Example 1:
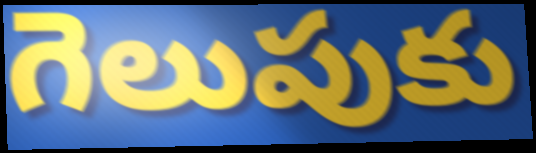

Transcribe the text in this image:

గెలుపుకు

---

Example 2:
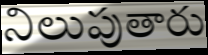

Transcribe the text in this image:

నిలుపుతారు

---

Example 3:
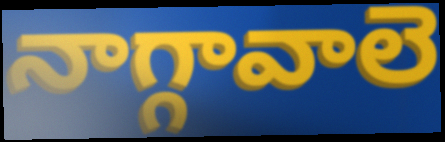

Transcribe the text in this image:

నాగ్గావాలె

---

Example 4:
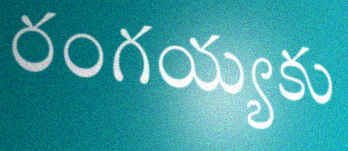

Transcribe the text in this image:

రంగయ్యకు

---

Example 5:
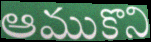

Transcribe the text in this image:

ఆముకొని